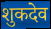
शुकदेव